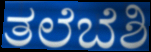
ತಲೆಬೆಶಿ